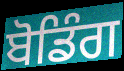
ਬੋਡਿੰਗ